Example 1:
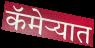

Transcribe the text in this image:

कॅमेर्‍यात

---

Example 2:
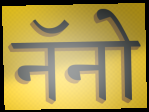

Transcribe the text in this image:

नॅनो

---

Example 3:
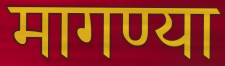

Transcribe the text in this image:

मागण्या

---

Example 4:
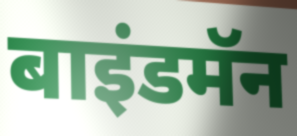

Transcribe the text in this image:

बाइंडमॅन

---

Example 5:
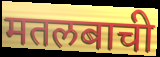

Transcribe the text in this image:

मतलबाची